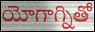
యోగాగ్నితో